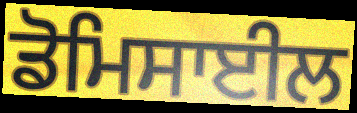
ਡੋਮਿਸਾਈਲ